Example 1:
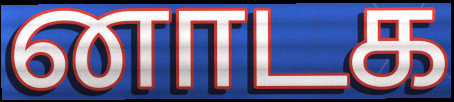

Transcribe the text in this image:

னாடக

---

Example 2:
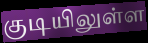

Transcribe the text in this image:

குடியிலுள்ள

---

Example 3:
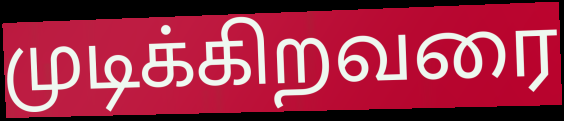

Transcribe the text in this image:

முடிக்கிறவரை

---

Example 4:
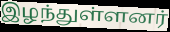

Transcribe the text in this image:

இழந்துள்ளனர்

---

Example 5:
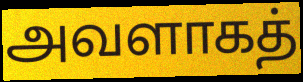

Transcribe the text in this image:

அவளாகத்